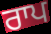
ਰਾਪ